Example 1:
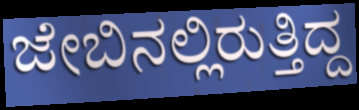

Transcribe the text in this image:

ಜೇಬಿನಲ್ಲಿರುತ್ತಿದ್ದ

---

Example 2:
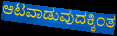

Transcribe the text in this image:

ಆಟವಾಡುವುದಕ್ಕಿಂತ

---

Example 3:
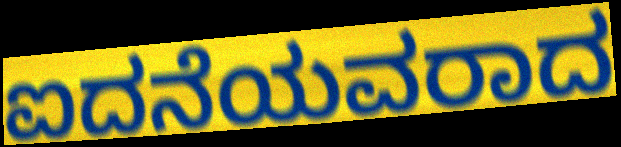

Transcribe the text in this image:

ಐದನೆಯವರಾದ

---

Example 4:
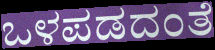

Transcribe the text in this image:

ಒಳಪಡದಂತೆ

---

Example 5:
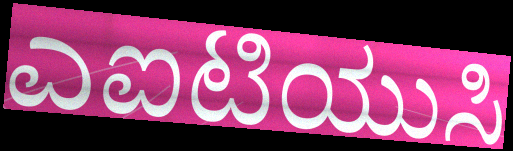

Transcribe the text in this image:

ಎಐಟಿಯುಸಿ